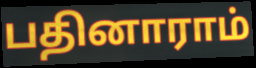
பதினாராம்